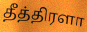
தீத்திரளா